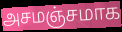
அசமஞ்சமாக